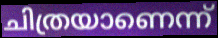
ചിത്രയാണെന്ന്